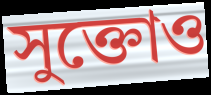
সুক্তোও